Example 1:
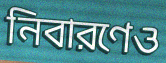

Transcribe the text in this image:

নিবারণেও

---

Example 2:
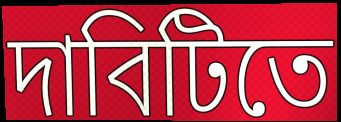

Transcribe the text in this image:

দাবিটিতে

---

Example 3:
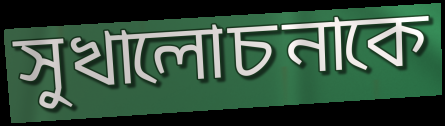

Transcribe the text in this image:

সুখালোচনাকে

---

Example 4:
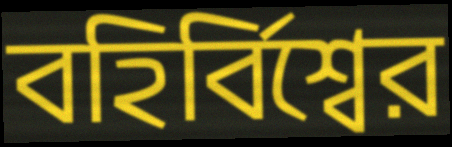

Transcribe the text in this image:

বহির্বিশ্বের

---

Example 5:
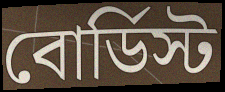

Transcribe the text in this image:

বোর্ডিস্ট